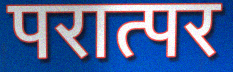
परात्पर